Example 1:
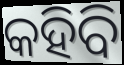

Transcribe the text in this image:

କହିବି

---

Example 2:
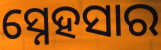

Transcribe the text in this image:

ସ୍ନେହସାର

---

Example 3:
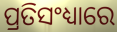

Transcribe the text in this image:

ପ୍ରତିସଂଧ୍ୟାରେ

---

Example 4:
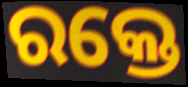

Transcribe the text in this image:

ରକ୍ତେ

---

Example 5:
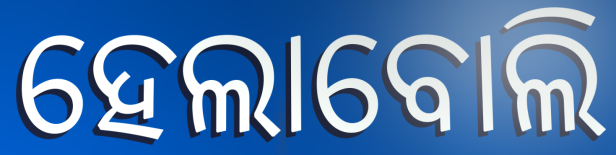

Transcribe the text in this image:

ହେଲାବୋଲି